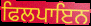
ਫਿਲਪਾਇਨ